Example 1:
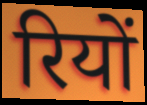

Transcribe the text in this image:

रियों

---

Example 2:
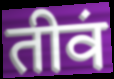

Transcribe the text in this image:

तीवं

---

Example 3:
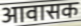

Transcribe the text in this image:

आवासक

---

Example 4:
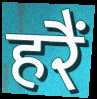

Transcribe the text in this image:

हरैं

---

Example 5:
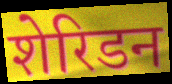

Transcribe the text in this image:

शेरिडन